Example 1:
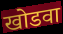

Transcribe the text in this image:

खोडवा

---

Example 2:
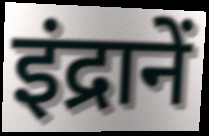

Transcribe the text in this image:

इंद्रानें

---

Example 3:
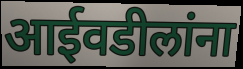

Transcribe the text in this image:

आईवडीलांना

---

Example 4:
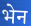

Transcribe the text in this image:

भेन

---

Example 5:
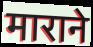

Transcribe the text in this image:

माराने